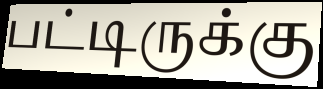
பட்டிருக்கு